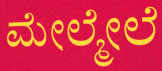
ಮೇಲ್ಮೇಲೆ